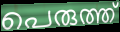
പെരുത്ത്